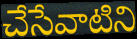
చేసేవాటిని